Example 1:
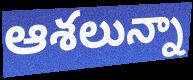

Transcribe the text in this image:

ఆశలున్నా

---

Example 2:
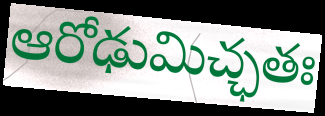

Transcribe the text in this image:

ఆరోఢుమిచ్ఛతః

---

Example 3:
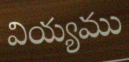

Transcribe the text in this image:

వియ్యము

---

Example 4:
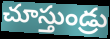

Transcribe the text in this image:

చూస్తుండ్రు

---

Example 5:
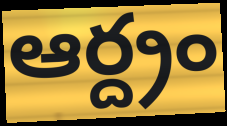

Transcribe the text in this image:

ఆర్ద్రం